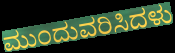
ಮುಂದುವರಿಸಿದಳು